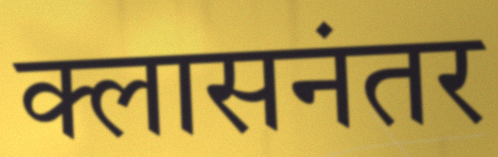
क्लासनंतर